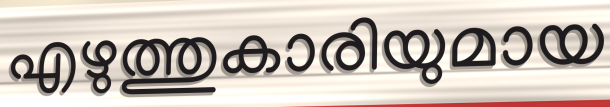
എഴുത്തുകാരിയുമായ